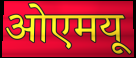
ओएमयू